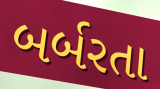
બર્બરતા